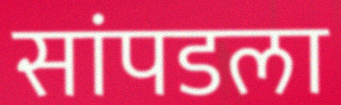
सांपडला